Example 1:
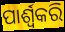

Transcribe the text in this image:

ପାର୍ଶ୍ଵକରି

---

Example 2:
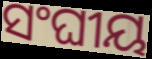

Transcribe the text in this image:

ସଂଘୀୟ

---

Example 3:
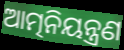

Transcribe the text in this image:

ଆତ୍ମନିୟନ୍ତ୍ରଣ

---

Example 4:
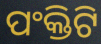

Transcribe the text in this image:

ପଂକ୍ତିଟି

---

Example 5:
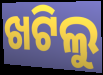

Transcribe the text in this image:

ଖଟିଲୁ